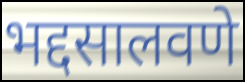
भद्दसालवणे